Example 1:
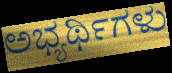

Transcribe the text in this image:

ಅಭ್ಯರ್ಥಿಗಳು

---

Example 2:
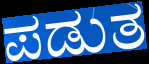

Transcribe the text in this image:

ಪಡುತ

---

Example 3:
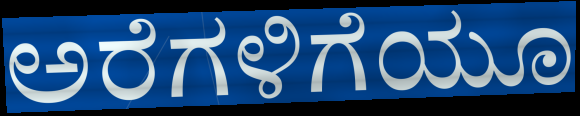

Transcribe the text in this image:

ಅರೆಗಳಿಗೆಯೂ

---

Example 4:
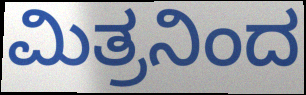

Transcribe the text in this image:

ಮಿತ್ರನಿಂದ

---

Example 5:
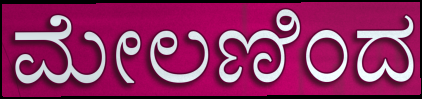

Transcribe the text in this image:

ಮೇಲಣಿಂದ